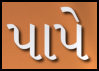
પાપે